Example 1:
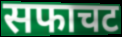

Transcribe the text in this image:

सफाचट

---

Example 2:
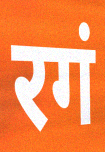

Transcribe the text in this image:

रगं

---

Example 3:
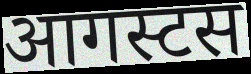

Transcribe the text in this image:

आगस्टस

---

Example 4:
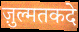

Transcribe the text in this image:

ज़ुल्मतकदे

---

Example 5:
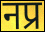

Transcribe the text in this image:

नप्र